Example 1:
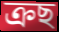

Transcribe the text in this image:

ক্ৰছ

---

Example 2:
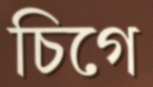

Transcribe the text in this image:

চিগে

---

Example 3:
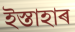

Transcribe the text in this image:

ইস্তাহাৰ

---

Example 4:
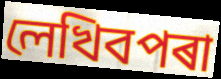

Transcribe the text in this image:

লেখিবপৰা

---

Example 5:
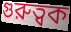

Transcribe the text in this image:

গুৰুত্বক